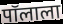
पॉलाला